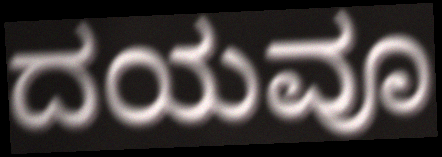
ದಯವೂ